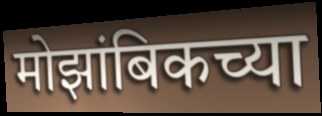
मोझांबिकच्या